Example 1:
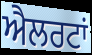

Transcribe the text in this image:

ਐਲਰਟਾਂ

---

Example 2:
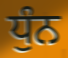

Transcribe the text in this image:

ਧੁੰਨ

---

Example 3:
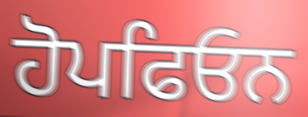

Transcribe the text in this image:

ਹੋਪਫਿਓਨ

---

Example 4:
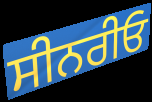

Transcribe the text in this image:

ਸੀਨਰੀਓ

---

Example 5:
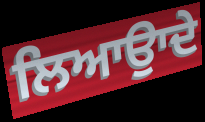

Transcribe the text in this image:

ਲਿਆਉਾਦੇ